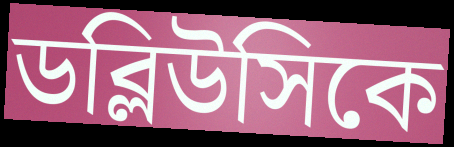
ডব্লিউসিকে